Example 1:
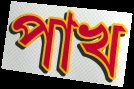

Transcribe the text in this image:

পাখ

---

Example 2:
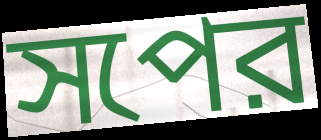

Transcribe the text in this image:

সপের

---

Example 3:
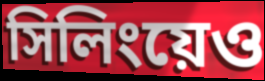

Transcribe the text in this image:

সিলিংয়েও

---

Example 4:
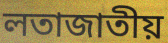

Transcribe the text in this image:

লতাজাতীয়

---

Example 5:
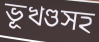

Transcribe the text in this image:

ভূখণ্ডসহ